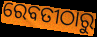
ରେବତୀଠାରୁ